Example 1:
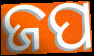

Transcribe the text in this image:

ଜପ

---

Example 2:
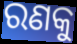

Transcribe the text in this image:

ରଣକୁ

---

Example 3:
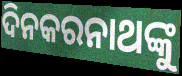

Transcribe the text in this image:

ଦିନକରନାଥଙ୍କୁ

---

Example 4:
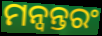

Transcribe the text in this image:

ମନ୍ବନ୍ତରଂ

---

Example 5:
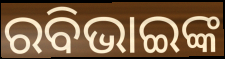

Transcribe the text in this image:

ରବିଭାଇଙ୍କ